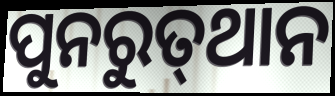
ପୁନରୁତ୍‍ଥାନ